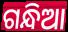
ଗନ୍ଧିଆ